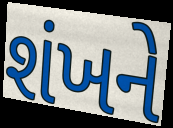
શંખને